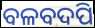
ବଳବଦପି